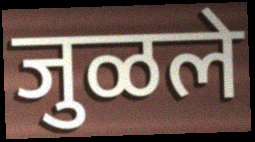
जुळले